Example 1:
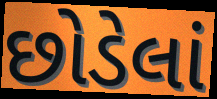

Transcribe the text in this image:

છોડેલાં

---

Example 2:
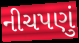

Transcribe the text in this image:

નીચપણું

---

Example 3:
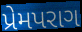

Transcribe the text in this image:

પ્રેમપરાગ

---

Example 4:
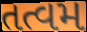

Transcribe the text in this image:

તત્વમ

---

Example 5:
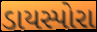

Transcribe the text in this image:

ડાયસ્પોરા